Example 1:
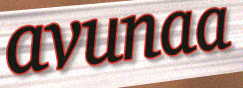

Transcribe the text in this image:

avunaa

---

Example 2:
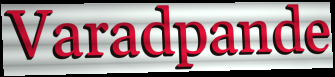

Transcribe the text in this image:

Varadpande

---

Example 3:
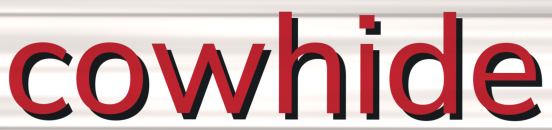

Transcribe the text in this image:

cowhide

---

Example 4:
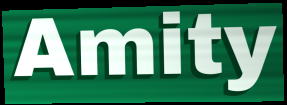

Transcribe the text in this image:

Amity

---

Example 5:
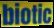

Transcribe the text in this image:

biotic